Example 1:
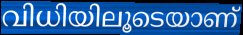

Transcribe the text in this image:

വിധിയിലൂടെയാണ്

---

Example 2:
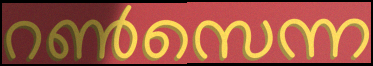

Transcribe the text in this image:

റൺസെന്ന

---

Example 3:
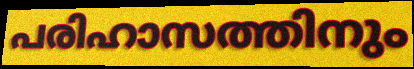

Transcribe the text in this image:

പരിഹാസത്തിനും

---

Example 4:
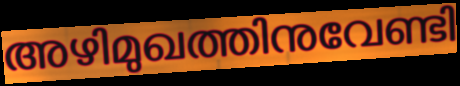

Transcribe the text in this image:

അഴിമുഖത്തിനുവേണ്ടി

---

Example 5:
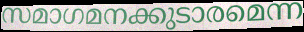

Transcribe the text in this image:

സമാഗമനക്കുടാരമെന്ന